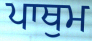
ਪਾਥੁਮ